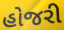
હોજરી